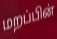
மறப்பின்